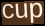
cup